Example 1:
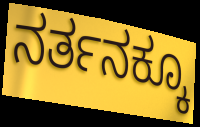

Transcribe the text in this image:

ನರ್ತನಕ್ಕೂ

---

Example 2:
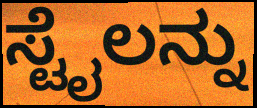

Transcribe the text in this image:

ಸ್ಟೈಲನ್ನು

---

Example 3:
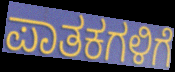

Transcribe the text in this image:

ಪಾತಕಗಳಿಗೆ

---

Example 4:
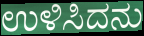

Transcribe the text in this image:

ಉಳಿಸಿದನು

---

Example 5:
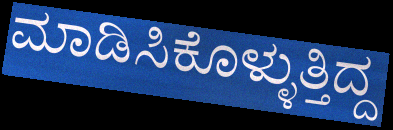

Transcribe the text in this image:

ಮಾಡಿಸಿಕೊಳ್ಳುತ್ತಿದ್ದ